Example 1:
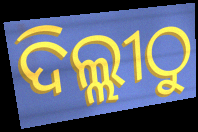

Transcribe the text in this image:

ଦିଲ୍ଲୀଠୁ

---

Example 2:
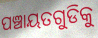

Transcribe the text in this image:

ପଞ୍ଚାୟତଗୁଡିକୁ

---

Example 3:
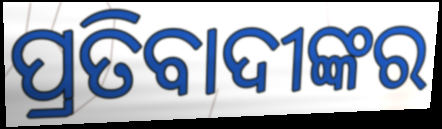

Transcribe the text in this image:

ପ୍ରତିବାଦୀଙ୍କର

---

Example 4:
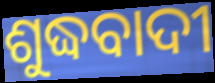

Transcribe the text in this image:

ଶୁଦ୍ଧବାଦୀ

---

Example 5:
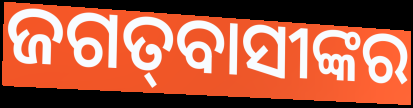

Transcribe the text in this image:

ଜଗତ୍‍ବାସୀଙ୍କର